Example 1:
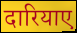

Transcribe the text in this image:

दारियाए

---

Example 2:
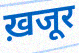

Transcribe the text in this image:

ख़जूर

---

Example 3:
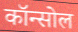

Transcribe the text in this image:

कॉन्सोल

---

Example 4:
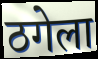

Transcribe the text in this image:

ठगेला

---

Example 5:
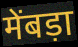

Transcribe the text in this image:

मेंबड़ा